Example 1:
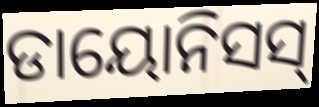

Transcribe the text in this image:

ଡାୟୋନିସସ୍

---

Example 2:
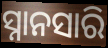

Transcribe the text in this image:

ସ୍ନାନସାରି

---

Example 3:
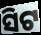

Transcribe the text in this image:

ସିଟ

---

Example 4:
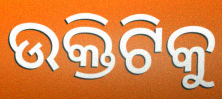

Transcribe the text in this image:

ଉକ୍ତିଟିକୁ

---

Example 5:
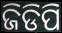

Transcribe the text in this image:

ଜିଡିପି